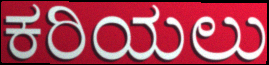
ಕರಿಯಲು